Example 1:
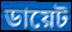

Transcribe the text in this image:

ডায়েট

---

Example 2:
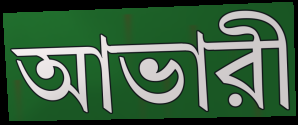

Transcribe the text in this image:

আভারী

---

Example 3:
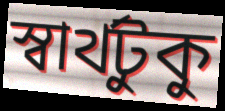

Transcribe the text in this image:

স্বার্থটুকু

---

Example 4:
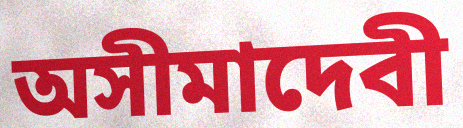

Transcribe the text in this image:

অসীমাদেবী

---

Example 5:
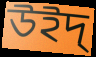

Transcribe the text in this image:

উইদ্